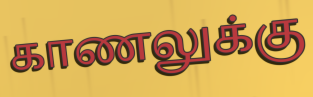
காணலுக்கு